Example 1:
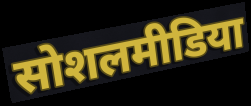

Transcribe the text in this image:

सोशलमीडिया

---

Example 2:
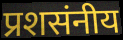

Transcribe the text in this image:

प्रशसंनीय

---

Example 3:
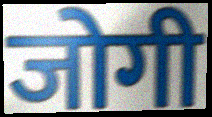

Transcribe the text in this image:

जोगी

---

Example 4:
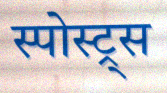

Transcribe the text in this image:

स्पोस्ट्र्स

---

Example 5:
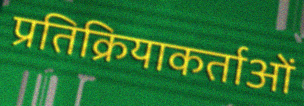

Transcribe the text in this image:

प्रतिक्रियाकर्ताओं